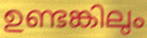
ഉണ്ടങ്കിലും